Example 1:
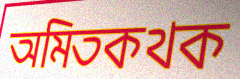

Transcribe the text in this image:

অমিতকথক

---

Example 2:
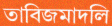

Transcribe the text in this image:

তাবিজমাদলি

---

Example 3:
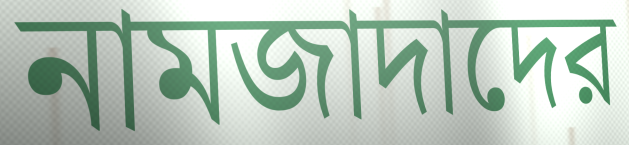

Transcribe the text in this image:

নামজাদাদের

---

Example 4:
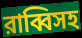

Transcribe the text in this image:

রাব্বিসহ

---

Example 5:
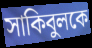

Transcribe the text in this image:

সাকিবুলকে